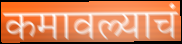
कमावल्याचं